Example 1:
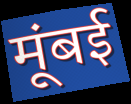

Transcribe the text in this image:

मूंबई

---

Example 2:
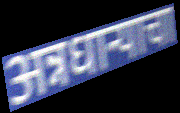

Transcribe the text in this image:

अन्नधान्याचा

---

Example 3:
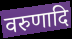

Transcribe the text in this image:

वरुणादि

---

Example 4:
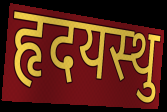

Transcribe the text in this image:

हृदयस्थु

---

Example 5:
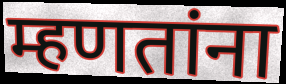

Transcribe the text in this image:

म्हणतांना